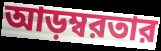
আড়ম্বরতার